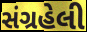
સંગ્રહેલી